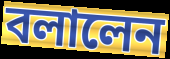
বলালেন